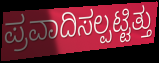
ಪ್ರವಾದಿಸಲ್ಪಟ್ಟಿತ್ತು